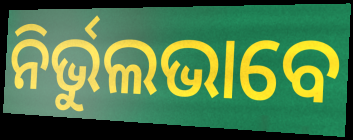
ନିର୍ଭୁଲଭାବେ